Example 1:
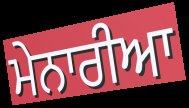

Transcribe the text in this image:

ਮੇਨਾਰੀਆ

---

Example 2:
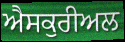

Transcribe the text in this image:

ਐਸਕੁਰੀਅਲ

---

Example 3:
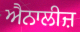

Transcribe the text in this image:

ਐਨਾਲੀਜ਼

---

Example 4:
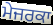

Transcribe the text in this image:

ਮੇਜਰਕਾ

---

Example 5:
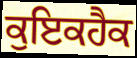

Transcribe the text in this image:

ਕੁਇਕਹੈਕ